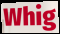
Whig